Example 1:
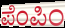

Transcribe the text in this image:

ಪೆಂಪಿಂ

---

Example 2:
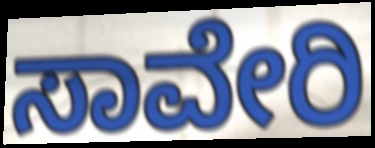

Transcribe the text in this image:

ಸಾವೇರಿ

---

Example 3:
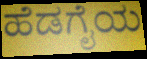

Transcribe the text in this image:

ಹೆಡಗೈಯ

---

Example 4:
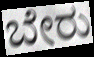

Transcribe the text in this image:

ಬೇರು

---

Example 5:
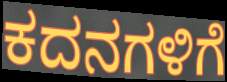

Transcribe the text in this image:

ಕದನಗಳಿಗೆ